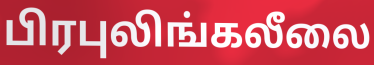
பிரபுலிங்கலீலை